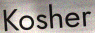
Kosher